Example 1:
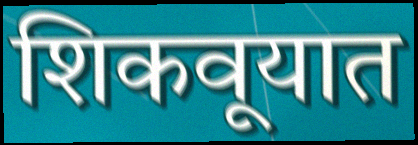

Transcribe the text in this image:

शिकवूयात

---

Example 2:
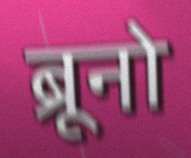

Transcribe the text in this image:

ब्रूनो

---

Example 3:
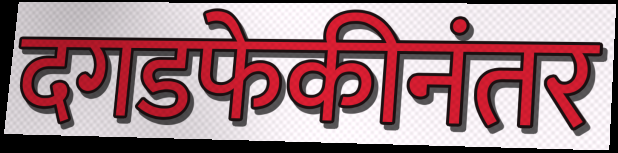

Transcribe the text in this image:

दगडफेकीनंतर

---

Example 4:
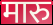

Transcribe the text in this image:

मारु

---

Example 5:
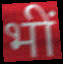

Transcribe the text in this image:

भीं